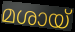
മശായ്